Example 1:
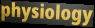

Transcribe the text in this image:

physiology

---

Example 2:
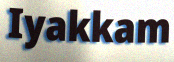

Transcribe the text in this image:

Iyakkam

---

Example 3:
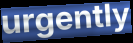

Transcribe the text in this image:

urgently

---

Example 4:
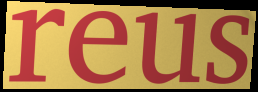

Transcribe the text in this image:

reus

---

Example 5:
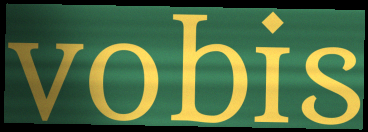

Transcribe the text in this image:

vobis